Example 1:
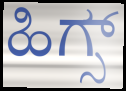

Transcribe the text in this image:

ಹಿಗ್ಸ್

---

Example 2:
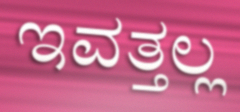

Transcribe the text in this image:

ಇವತ್ತಲ್ಲ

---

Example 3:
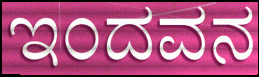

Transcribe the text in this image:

ಇಂದವನ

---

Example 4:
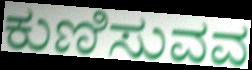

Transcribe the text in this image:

ಕುಣಿಸುವವ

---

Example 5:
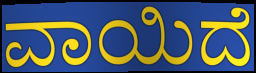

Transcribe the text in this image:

ವಾಯಿದೆ